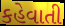
કહેવાતી